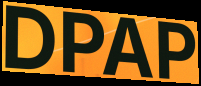
DPAP